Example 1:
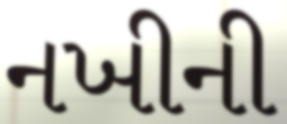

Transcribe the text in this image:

નખીની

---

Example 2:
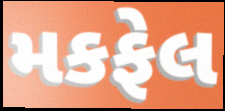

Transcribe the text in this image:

મકફેલ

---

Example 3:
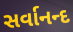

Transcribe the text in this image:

સર્વાનન્દ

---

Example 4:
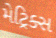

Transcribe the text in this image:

મેટ્રિક્સ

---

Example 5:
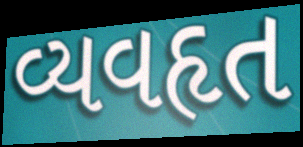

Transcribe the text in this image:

વ્યવહૃત